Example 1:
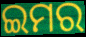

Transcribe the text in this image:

ଇମର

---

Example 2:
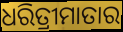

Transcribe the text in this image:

ଧରିତ୍ରୀମାତାର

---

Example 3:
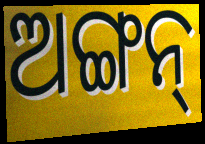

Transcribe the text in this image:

ଅଙ୍ଗନ୍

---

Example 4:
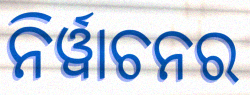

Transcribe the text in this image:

ନିର୍ୱାଚନର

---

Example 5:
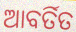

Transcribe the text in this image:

ଆବର୍ତିତ